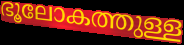
ഭൂലോകത്തുള്ള